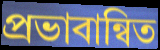
প্রভাবান্বিত